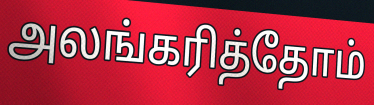
அலங்கரித்தோம்